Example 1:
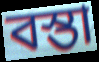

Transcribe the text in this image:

বস্তা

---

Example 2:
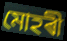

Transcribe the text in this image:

মোহৰী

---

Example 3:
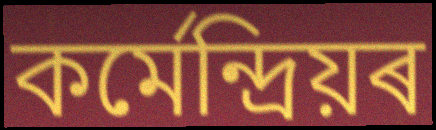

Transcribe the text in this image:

কৰ্মেন্দ্ৰিয়ৰ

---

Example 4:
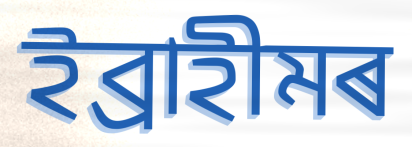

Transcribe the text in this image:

ইব্ৰাহীমৰ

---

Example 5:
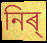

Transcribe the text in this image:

নিৰ্